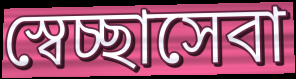
স্বেচ্ছাসেবা